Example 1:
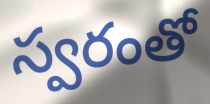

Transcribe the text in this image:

స్వరంతో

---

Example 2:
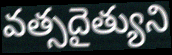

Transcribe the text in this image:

వత్సదైత్యుని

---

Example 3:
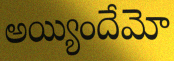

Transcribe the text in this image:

అయ్యిందేమో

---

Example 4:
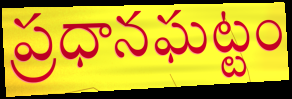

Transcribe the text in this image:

ప్రధానఘట్టం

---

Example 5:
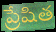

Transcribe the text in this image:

ప్రేషిత